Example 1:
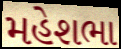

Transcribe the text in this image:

મહેશભા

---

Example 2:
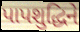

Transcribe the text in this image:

પાપશુદ્ધિને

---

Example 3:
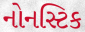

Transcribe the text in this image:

નોનસ્ટિક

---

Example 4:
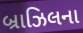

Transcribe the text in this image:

બ્રાઝિલના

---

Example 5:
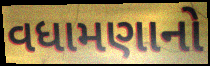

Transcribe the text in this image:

વધામણાનો